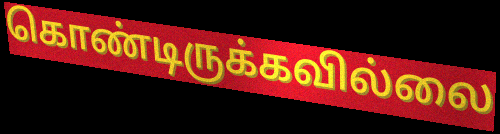
கொண்டிருக்கவில்லை